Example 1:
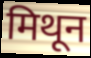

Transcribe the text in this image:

मिथून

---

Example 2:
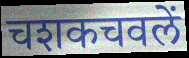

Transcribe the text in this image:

चशकचवलें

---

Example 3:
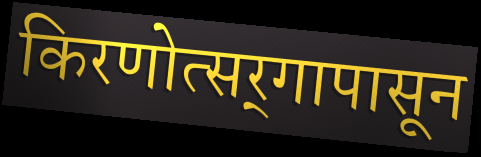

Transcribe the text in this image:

किरणोत्सर्गापासून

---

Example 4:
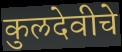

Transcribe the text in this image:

कुलदेवीचे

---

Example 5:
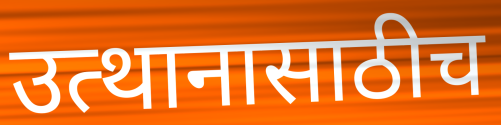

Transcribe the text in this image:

उत्थानासाठीच